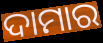
ଦାମାର